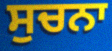
ਸੁਚਨਾ